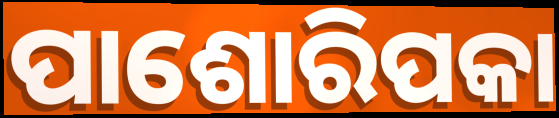
ପାଶୋରିପକା